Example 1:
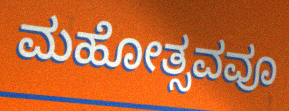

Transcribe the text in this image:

ಮಹೋತ್ಸವವೂ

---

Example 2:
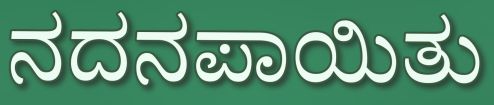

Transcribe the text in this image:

ನದನಪಾಯಿತು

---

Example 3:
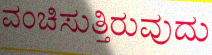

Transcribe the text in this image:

ವಂಚಿಸುತ್ತಿರುವುದು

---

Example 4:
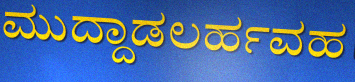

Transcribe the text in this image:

ಮುದ್ದಾಡಲರ್ಹವಹ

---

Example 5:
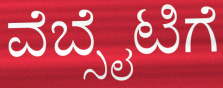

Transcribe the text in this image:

ವೆಬ್ಸೈಟಿಗೆ